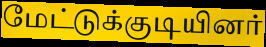
மேட்டுக்குடியினர்